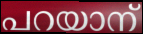
പറയാന്